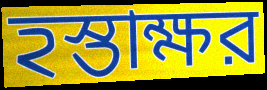
হস্তাক্ষর